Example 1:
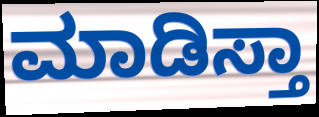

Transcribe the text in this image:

ಮಾಡಿಸ್ತಾ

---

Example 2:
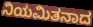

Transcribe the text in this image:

ನಿಯಮಿತನಾದ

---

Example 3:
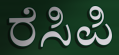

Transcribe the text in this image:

ರೆಸಿಪಿ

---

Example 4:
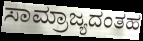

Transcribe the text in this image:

ಸಾಮ್ರಾಜ್ಯದಂತಹ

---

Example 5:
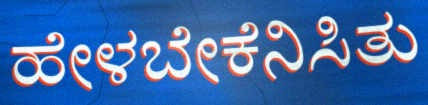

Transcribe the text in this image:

ಹೇಳಬೇಕೆನಿಸಿತು